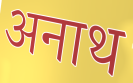
अनाथ